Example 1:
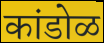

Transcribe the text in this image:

कांडोळ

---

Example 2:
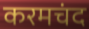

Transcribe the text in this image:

करमचंद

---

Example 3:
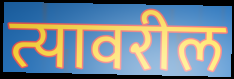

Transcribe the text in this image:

त्यावरील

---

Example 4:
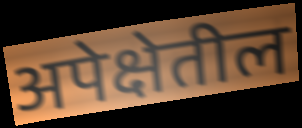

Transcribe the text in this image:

अपेक्षेतील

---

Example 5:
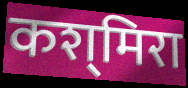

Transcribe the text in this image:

कश्मिरा